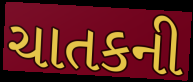
ચાતકની